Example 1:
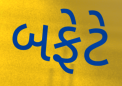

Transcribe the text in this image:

બફેટે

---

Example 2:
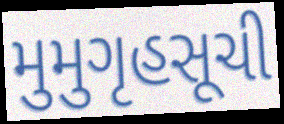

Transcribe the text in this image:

મુમુગૃહસૂચી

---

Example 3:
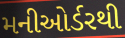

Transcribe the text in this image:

મનીઓર્ડરથી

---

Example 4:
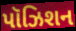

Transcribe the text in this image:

પૉઝિશન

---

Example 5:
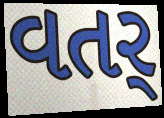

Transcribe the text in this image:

વતર્